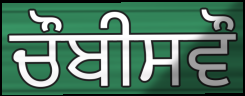
ਚੌਬੀਸਵੌ